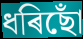
ধৰিছোঁ